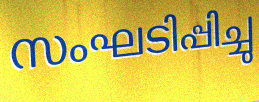
സംഘടിപ്പിച്ചു